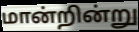
மான்றின்று